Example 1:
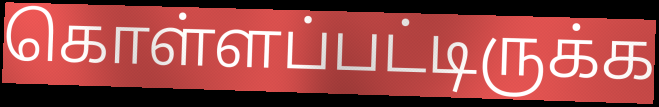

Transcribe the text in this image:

கொள்ளப்பட்டிருக்க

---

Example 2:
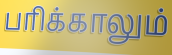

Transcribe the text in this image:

பரிக்காலும்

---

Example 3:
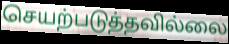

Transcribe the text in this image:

செயற்படுத்தவில்லை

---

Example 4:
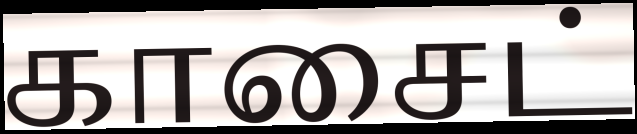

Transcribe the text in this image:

காசைட்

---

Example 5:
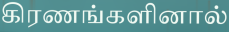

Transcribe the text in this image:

கிரணங்களினால்